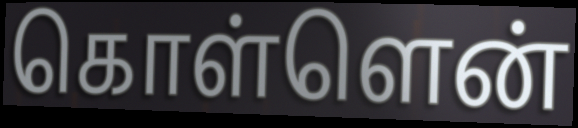
கொள்ளென்